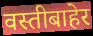
वस्तीबाहेर